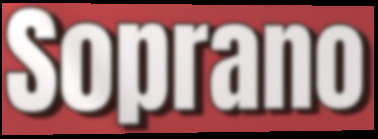
Soprano